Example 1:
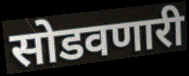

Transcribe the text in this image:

सोडवणारी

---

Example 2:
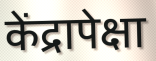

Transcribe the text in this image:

केंद्रापेक्षा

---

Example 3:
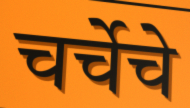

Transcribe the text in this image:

चर्चेचे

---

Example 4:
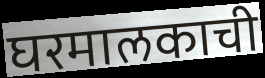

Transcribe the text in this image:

घरमालकाची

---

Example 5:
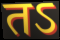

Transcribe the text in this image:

तऽ